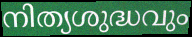
നിത്യശുദ്ധവും